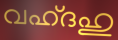
വഹ്ദഹു